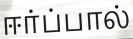
ஈர்ப்பால்